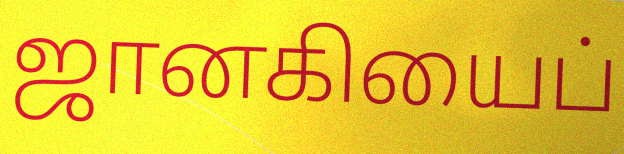
ஜானகியைப்